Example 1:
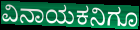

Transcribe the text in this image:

ವಿನಾಯಕನಿಗೂ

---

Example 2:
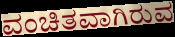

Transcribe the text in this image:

ವಂಚಿತವಾಗಿರುವ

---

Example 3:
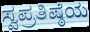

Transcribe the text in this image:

ಸ್ವಪ್ರತಿಷ್ಠೆಯ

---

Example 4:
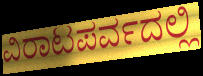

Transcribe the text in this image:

ವಿರಾಟಪರ್ವದಲ್ಲಿ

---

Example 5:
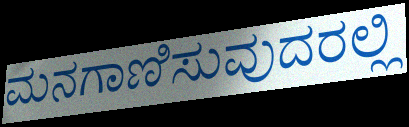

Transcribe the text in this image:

ಮನಗಾಣಿಸುವುದರಲ್ಲಿ